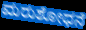
ಮರುಶೋಧನೆ